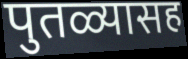
पुतळ्यासह